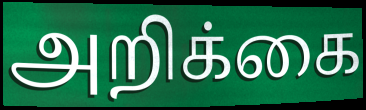
அறிக்கை